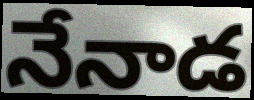
నేనాడ